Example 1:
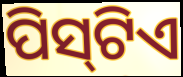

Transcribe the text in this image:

ପିସ୍‌ଟିଏ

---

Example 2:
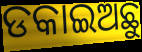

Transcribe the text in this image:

ଡକାଇଅଛୁ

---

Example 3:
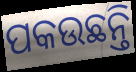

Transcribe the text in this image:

ପକଉଛନ୍ତି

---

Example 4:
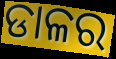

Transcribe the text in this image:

ଡାଳର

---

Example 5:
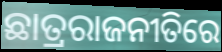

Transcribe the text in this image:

ଛାତ୍ରରାଜନୀତିରେ